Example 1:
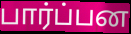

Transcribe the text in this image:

பார்ப்பன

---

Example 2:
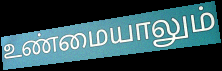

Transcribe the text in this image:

உண்மையாலும்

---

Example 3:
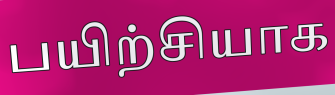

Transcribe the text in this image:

பயிற்சியாக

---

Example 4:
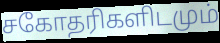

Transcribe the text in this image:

சகோதரிகளிடமும்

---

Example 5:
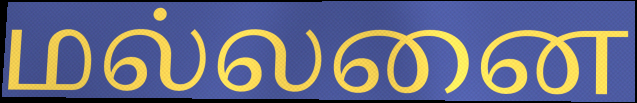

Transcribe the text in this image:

மல்லனை